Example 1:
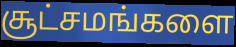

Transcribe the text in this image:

சூட்சமங்களை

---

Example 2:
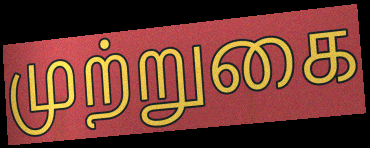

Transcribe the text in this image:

முற்றுகை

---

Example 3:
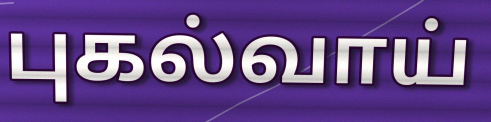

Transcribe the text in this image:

புகல்வாய்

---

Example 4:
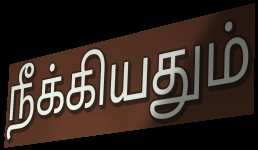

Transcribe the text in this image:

நீக்கியதும்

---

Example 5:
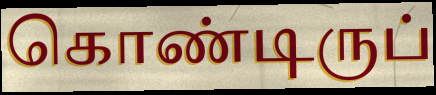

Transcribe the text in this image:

கொண்டிருப்